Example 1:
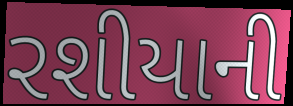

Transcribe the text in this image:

રશીયાની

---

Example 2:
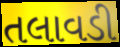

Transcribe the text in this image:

તલાવડી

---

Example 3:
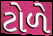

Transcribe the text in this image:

ટોળે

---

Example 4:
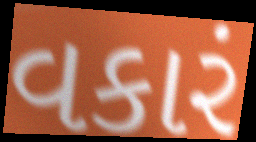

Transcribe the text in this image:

વકારં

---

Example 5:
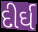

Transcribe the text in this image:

દીર્ઘ